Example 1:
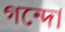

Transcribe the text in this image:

গন্দো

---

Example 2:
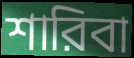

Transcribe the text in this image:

শারিবা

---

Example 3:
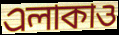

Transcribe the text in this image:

এলাকাও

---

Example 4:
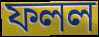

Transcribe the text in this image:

ফলল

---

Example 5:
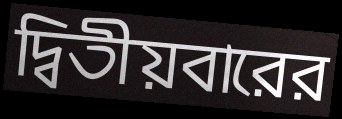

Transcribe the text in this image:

দ্বিতীয়বারের